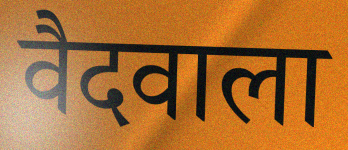
वैदवाला